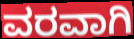
ವರವಾಗಿ